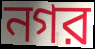
নগর